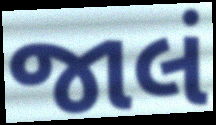
જાલં